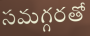
సమగ్గరతో